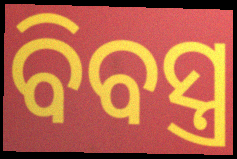
ବିବସ୍ତ୍ର